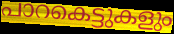
പാറകെട്ടുകളും